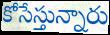
కోసేస్తున్నారు